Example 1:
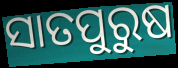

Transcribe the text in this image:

ସାତପୁରୁଷ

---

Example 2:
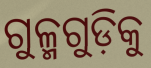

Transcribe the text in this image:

ଗୁଳ୍ମଗୁଡ଼ିକୁ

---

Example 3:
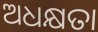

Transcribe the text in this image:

ଅଧକ୍ଷତା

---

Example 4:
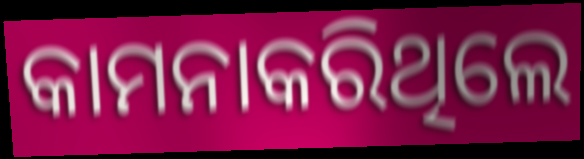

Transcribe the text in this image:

କାମନାକରିଥିଲେ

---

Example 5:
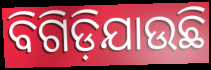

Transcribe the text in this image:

ବିଗିଡ଼ିଯାଉଛି